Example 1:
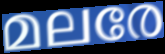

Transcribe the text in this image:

മലരേ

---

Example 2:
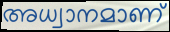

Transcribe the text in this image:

അധ്വാനമാണ്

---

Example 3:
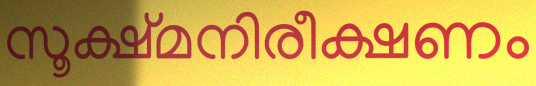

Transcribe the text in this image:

സൂക്ഷ്മനിരീക്ഷണം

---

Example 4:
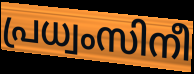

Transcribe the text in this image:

പ്രധ്വംസിനീ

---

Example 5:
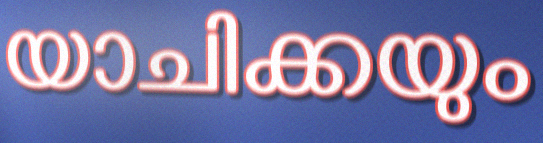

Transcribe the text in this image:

യാചിക്കയും